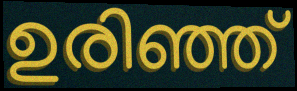
ഉരിഞ്ഞ്